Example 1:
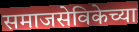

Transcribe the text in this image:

समाजसेविकेच्या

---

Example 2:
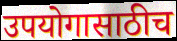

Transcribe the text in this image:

उपयोगासाठीच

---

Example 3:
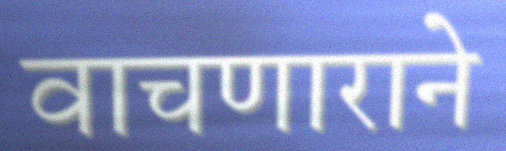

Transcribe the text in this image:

वाचणाराने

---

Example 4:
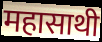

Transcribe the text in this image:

महासाथी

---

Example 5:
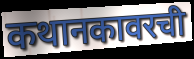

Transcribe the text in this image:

कथानकावरची